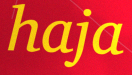
haja